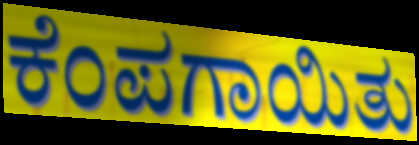
ಕೆಂಪಗಾಯಿತು